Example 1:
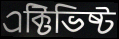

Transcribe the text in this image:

এক্টিভিষ্ট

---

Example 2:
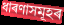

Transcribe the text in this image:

ধাৰণাসমূহৰ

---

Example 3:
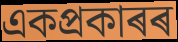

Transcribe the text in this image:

একপ্ৰকাৰৰ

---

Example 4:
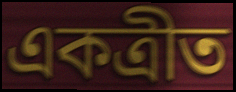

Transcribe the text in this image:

একত্ৰীত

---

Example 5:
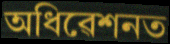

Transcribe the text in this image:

অধিৱেশনত